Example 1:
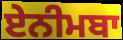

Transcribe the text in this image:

ਏਨੀਮਬਾ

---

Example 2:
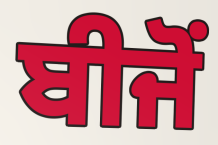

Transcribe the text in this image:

ਬੀਜੋਂ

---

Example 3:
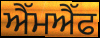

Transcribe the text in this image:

ਐੱਮਐੱਫ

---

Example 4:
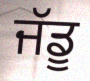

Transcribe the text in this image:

ਜੱਡੂ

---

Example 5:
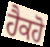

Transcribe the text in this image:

ਹੈਕਹੋ